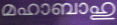
മഹാബാഹു